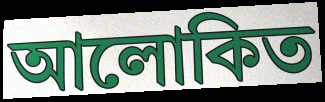
আলোকিত